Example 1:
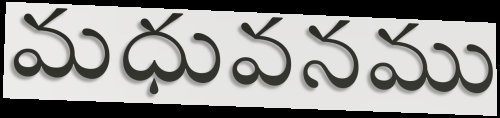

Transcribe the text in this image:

మధువనము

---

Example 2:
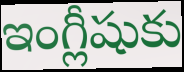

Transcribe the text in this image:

ఇంగ్లీషుకు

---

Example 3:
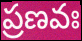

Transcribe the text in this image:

ప్రణవః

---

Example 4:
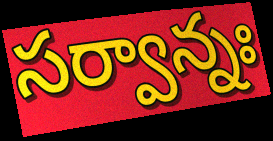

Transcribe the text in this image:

సర్వాన్నః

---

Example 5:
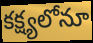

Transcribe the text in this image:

కక్ష్యలోనూ